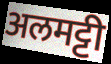
अलमट्टी